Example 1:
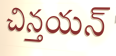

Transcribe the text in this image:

చిన్తయన్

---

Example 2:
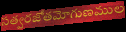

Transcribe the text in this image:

సత్వరజోతమోగుణముల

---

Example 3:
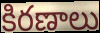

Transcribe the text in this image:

కిరణాలు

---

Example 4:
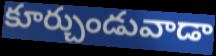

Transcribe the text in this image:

కూర్చుండువాడా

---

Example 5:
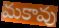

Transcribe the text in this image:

మకావు